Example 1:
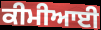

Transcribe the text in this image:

ਕੀਮੀਆਈ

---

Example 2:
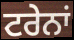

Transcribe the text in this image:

ਟਰੇਨਾਂ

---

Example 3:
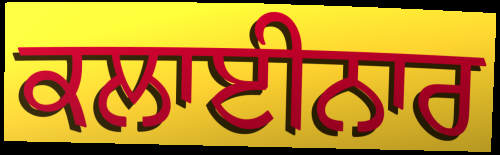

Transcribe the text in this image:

ਕਲਾਈਨਾਰ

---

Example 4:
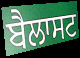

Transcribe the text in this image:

ਬੈਲਾਸਟ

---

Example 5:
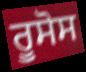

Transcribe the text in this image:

ਰੂਸੋਸ